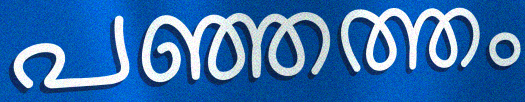
പഞ്ഞത്തം